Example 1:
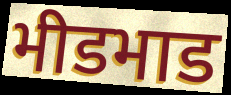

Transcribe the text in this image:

भीडभाड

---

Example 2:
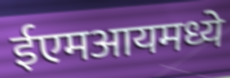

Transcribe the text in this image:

ईएमआयमध्ये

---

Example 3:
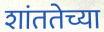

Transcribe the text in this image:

शांततेच्या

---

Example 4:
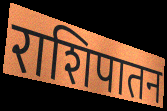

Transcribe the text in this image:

राशिपातन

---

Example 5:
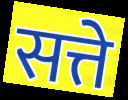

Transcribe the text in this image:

सत्ते